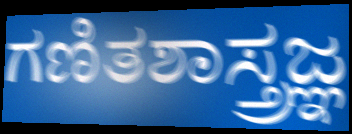
ಗಣಿತಶಾಸ್ತ್ರಜ್ಞ